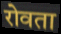
रोवता